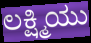
ಲಕ್ಷ್ಮಿಯು